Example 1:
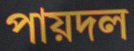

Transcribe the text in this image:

পায়দল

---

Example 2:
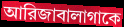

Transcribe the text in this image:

আরিজাবালাগাকে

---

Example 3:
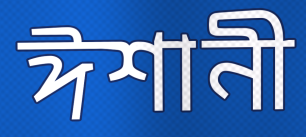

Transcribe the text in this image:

ঈশানী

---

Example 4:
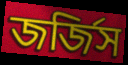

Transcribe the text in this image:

জর্জিস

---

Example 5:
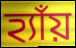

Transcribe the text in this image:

হ্যাঁয়